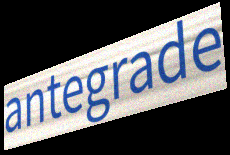
antegrade